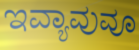
ಇವ್ಯಾವುವೂ